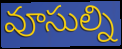
వూసుల్ని